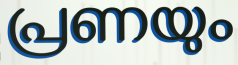
പ്രണയും